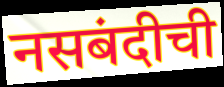
नसबंदीची